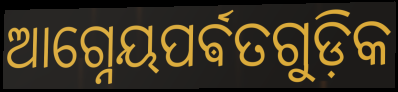
ଆଗ୍ନେୟପର୍ଵତଗୁଡ଼ିକ